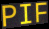
PIF